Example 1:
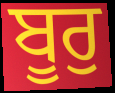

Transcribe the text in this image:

ਬੂਰੁ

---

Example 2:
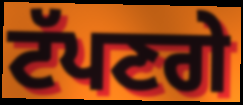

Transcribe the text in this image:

ਟੱਪਣਗੇ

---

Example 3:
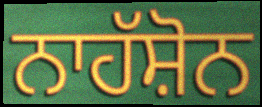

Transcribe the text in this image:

ਨਾਹੱਸ਼ੋਨ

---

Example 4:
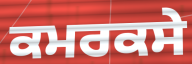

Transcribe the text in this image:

ਕਮਰਕਸੇ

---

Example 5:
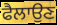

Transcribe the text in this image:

ਫੈਲਾਉਣ